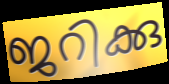
ജറിക്കു